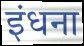
इंधना